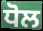
ਧੋਲ